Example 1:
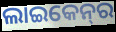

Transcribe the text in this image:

ଲାଇକେନ୍‌ର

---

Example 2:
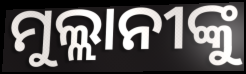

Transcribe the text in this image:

ମୁଲ୍ଲାନୀଙ୍କୁ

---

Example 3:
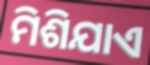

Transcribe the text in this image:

ମିଶିଯାଏ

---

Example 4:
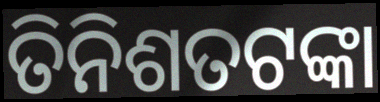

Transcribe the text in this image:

ତିନିଶତଟଙ୍କା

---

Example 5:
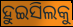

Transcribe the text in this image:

ହୁଇସିଲକୁ